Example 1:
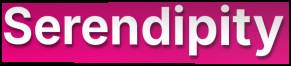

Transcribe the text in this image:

Serendipity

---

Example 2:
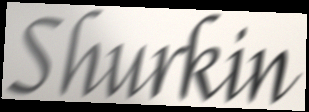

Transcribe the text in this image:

Shurkin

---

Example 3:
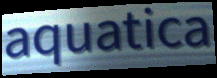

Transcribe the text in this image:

aquatica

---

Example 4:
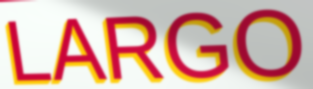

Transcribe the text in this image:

LARGO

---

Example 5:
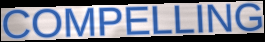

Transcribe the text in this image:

COMPELLING